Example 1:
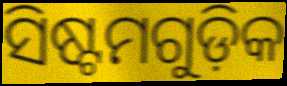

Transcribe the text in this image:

ସିଷ୍ଟମଗୁଡ଼ିକ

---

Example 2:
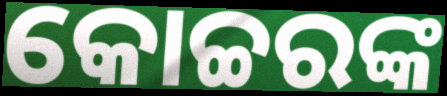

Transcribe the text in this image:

କୋଚ୍ଚରଙ୍କ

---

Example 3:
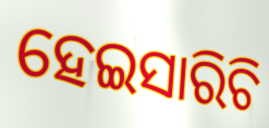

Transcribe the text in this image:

ହେଇସାରିଚି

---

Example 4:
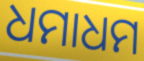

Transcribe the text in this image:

ଧମାଧମ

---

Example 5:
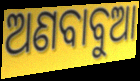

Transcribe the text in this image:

ଅଣବାବୁଆ